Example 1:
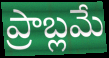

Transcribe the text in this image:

ప్రాబ్లమే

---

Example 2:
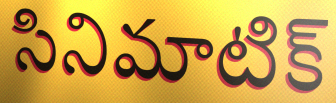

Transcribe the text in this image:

సినిమాటిక్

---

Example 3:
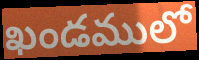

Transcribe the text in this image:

ఖండములో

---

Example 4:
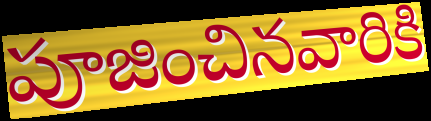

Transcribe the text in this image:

పూజించినవారికి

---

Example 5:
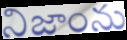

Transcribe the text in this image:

నిజాంను